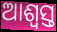
ଆଶ୍ବସ୍ତ